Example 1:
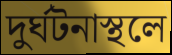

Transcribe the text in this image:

দুর্ঘটনাস্থলে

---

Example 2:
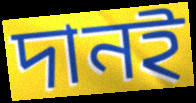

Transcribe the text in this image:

দানই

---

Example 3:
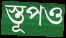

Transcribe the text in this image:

স্তূপও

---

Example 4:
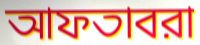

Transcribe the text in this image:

আফতাবরা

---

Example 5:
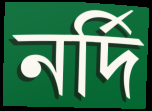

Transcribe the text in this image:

নর্দি